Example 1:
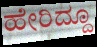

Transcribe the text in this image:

ಹೇರಿದ್ದೂ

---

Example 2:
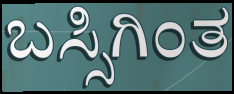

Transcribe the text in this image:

ಬಸ್ಸಿಗಿಂತ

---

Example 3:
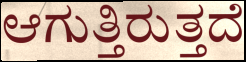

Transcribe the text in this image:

ಆಗುತ್ತಿರುತ್ತದೆ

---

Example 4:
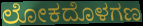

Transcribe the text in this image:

ಲೋಕದೊಳಗಣ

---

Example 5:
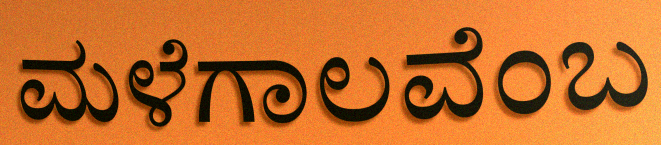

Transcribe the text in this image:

ಮಳೆಗಾಲವೆಂಬ